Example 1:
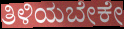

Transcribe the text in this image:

ತಿಳಿಯಬೇಕೇ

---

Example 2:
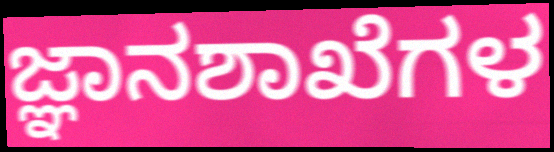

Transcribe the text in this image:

ಜ್ಞಾನಶಾಖೆಗಳ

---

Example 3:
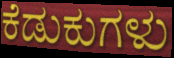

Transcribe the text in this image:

ಕೆಡುಕುಗಳು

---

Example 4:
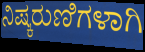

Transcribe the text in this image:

ನಿಷ್ಕರುಣಿಗಳಾಗಿ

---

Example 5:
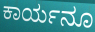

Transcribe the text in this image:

ಕಾರ್ಯನೂ